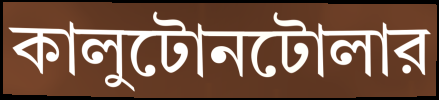
কালুটোনটোলার